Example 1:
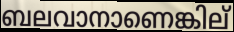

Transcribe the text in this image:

ബലവാനാണെങ്കില്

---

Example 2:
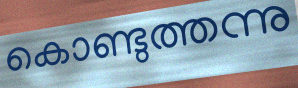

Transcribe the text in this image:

കൊണ്ടുത്തന്നു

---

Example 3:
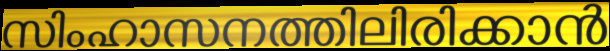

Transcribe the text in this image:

സിംഹാസനത്തിലിരിക്കാൻ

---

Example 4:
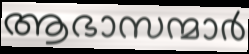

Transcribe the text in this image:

ആഭാസന്മാർ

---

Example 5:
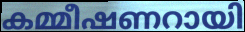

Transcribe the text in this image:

കമ്മീഷണറായി